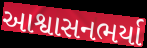
આશ્વાસનભર્યા